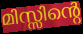
മിസ്സിന്റെ